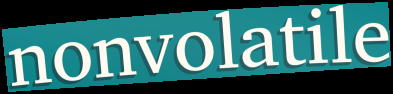
nonvolatile